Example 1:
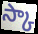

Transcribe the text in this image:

స్కా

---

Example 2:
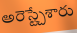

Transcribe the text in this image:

అరెస్ట్చేశారు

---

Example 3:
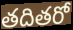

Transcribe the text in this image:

తదితరో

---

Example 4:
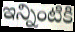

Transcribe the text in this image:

ఇన్నింటికి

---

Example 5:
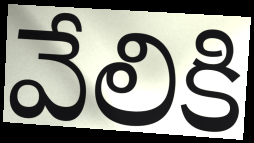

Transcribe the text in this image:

వేలికి